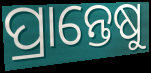
ପ୍ରାନ୍ତେଷୁ